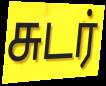
சுடர்